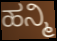
ಹನ್ಮಿ